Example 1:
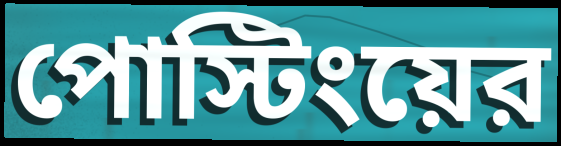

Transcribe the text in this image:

পোস্টিংয়ের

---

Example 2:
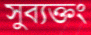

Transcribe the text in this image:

সুব্যক্তং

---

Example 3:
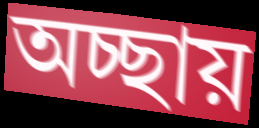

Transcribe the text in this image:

অচ্ছায়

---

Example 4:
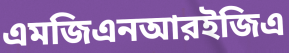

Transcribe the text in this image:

এমজিএনআরইজিএ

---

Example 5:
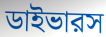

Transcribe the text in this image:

ডাইভারস